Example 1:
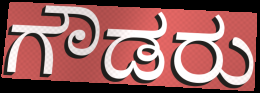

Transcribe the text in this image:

ಗೌಡರು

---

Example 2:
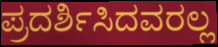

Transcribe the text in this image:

ಪ್ರದರ್ಶಿಸಿದವರಲ್ಲ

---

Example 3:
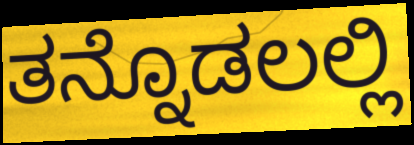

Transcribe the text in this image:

ತನ್ನೊಡಲಲ್ಲಿ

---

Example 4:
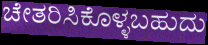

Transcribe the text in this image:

ಚೇತರಿಸಿಕೊಳ್ಳಬಹುದು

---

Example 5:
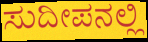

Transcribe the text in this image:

ಸುದೀಪನಲ್ಲಿ